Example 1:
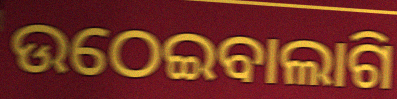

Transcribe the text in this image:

ଉଠେଇବାଲାଗି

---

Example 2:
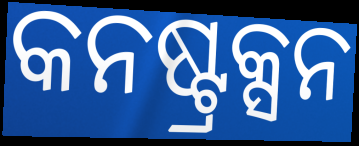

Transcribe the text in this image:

କନଷ୍ଟ୍ରକ୍ସନ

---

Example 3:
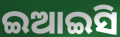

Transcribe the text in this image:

ଇଆଇସି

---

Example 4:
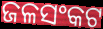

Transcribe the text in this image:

ଜଳସଂକଟ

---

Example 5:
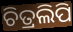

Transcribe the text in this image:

ଚିତ୍ରଲିପି